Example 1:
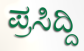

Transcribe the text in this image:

ಪ್ರಸಿದ್ದಿ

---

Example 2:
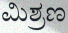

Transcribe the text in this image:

ಮಿಶ್ರಣ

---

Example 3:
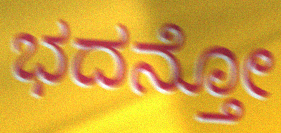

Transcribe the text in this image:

ಭದನ್ತೋ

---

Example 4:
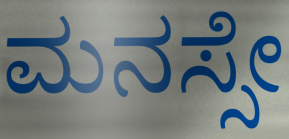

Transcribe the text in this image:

ಮನಸ್ಸೇ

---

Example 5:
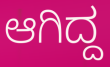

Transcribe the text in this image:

ಆಗಿದ್ದ